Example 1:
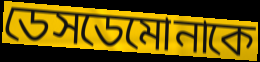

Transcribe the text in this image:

ডেসডেমোনাকে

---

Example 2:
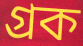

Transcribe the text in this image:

গ্রক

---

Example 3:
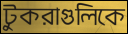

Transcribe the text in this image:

টুকরাগুলিকে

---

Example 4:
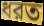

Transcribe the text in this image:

ধরত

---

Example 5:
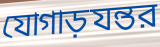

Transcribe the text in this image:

যোগাড়যন্তর